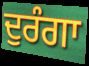
ਦੁਰੰਗਾ